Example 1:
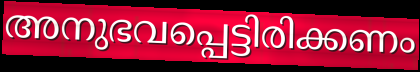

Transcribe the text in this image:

അനുഭവപ്പെട്ടിരിക്കണം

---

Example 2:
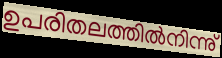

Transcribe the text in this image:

ഉപരിതലത്തിൽനിന്നു്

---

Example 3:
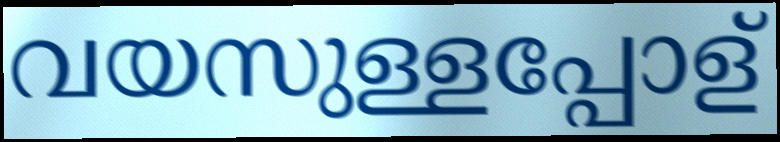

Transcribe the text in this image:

വയസുള്ളപ്പോള്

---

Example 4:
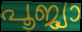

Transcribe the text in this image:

പൂജ്യാ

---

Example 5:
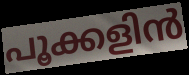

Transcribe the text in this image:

പൂക്കളിൻ